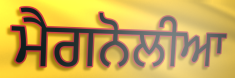
ਮੈਗਨੋਲੀਆ